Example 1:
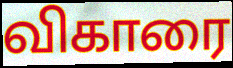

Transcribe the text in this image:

விகாரை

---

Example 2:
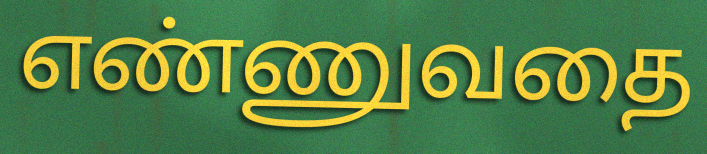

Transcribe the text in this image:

எண்ணுவதை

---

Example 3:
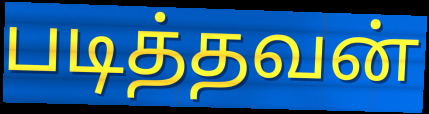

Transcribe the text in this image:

படித்தவன்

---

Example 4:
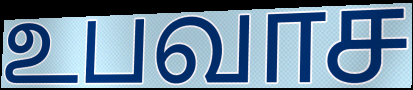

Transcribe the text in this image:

உபவாச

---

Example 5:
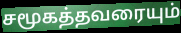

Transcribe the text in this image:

சமூகத்தவரையும்